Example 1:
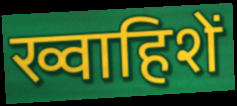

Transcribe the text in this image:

ख्वाहिशें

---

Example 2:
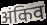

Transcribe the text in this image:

अंकिव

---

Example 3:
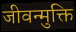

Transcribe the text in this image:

जीवन्मुक्ति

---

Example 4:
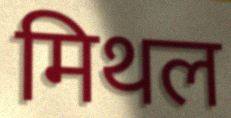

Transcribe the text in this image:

मिथल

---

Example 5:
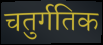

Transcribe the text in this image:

चतुर्गतिक